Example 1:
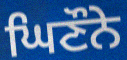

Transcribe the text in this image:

ਘਿਣੌਨੇ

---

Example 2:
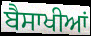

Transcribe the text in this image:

ਬੈਸਾਖੀਆਂ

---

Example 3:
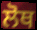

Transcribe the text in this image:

ਲੋਥ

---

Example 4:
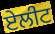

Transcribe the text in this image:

ਏਲੀਟ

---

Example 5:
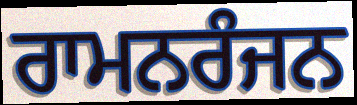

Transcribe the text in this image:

ਰਾਮਨਰੰਜਨ